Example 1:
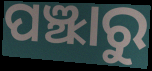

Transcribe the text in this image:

ପଞ୍ଝାରୁ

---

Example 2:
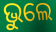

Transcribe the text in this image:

ଭୁଲେ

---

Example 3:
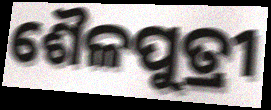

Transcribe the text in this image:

ଶୈଳପୁତ୍ରୀ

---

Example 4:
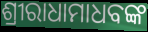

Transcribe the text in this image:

ଶ୍ରୀରାଧାମାଧବଙ୍କ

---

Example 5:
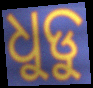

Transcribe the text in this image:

ଧୁଡୁ